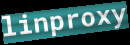
linproxy